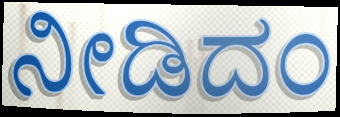
ನೀಡಿದಂ